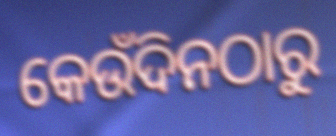
କେଉଁଦିନଠାରୁ